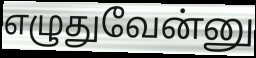
எழுதுவேன்னு